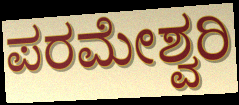
ಪರಮೇಶ್ವರಿ